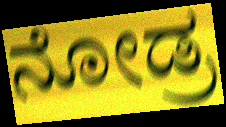
ನೋಡ್ರ